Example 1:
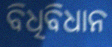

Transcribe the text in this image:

ବିଧିବିଧାନ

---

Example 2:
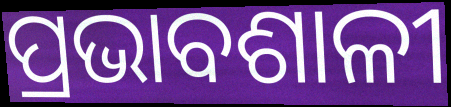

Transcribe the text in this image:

ପ୍ରଭାବଶାଳୀ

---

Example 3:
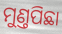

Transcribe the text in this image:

ମୁଣ୍ତପିଛା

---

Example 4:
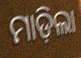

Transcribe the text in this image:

ମାଡ଼ିଲା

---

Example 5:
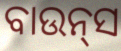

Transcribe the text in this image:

ବାଉନ୍‌ସ